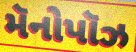
મૅનોપૉઝ